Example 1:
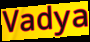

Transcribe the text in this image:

Vadya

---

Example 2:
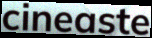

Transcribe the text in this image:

cineaste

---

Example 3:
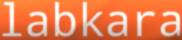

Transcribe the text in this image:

labkara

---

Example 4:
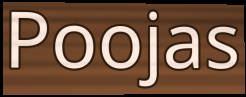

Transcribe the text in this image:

Poojas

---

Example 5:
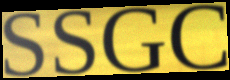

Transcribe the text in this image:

SSGC